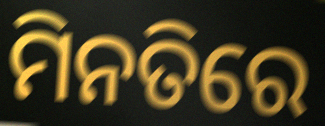
ମିନତିରେ